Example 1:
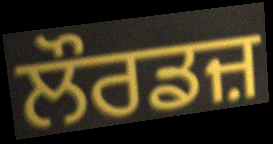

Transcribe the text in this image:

ਲੌਰਡਜ਼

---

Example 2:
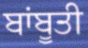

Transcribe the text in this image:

ਬਾਂਬੂਤੀ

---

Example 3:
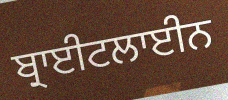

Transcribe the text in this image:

ਬ੍ਰਾਈਟਲਾਈਨ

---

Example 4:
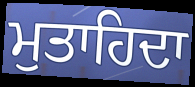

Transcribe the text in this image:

ਮੁਤਾਹਿਦਾ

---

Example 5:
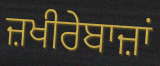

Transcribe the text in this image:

ਜ਼ਖੀਰੇਬਾਜ਼ਾਂ